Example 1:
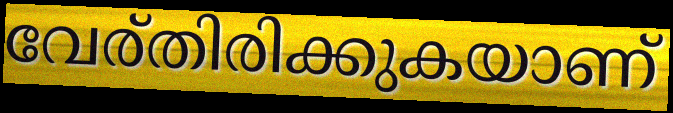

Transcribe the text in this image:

വേര്തിരിക്കുകയാണ്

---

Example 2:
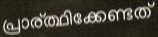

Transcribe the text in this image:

പ്രാര്ത്ഥിക്കേണ്ടത്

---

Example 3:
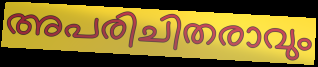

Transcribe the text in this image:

അപരിചിതരാവും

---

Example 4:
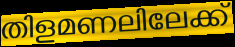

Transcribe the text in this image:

തിളമണലിലേക്ക്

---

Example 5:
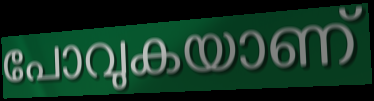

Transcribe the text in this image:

പോവുകയാണ്